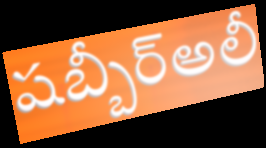
షబ్బీర్అలీ